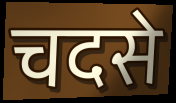
चदसे